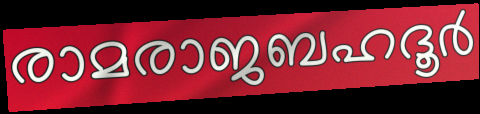
രാമരാജബഹദൂർ